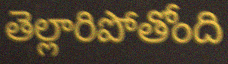
తెల్లారిపోతోంది